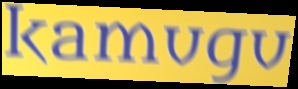
kamugu